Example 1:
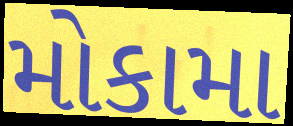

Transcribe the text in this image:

મોકામા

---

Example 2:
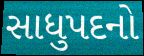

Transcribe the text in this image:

સાધુપદનો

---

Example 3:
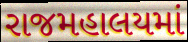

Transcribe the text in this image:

રાજમહાલયમાં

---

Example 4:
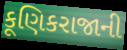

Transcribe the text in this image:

કૂણિકરાજાની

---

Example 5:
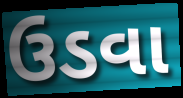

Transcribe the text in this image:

ઉડવા